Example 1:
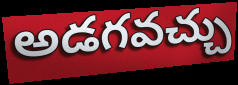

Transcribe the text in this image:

అడగవచ్చు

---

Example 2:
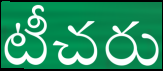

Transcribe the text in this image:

టీచరు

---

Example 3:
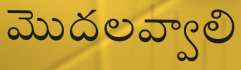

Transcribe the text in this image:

మొదలవ్వాలి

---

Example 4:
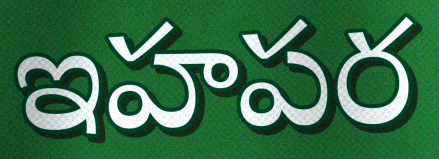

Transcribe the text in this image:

ఇహపర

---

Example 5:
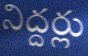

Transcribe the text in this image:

నిద్దర్లు